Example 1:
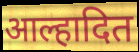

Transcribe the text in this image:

आल्हादित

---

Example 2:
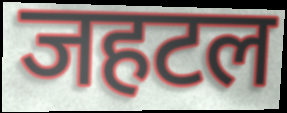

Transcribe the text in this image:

जहटल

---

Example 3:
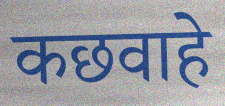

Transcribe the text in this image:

कछवाहे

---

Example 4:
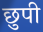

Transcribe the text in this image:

छुपी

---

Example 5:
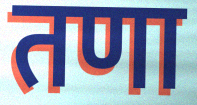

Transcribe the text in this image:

तणा